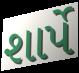
શાર્પે